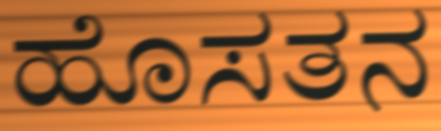
ಹೊಸತನ